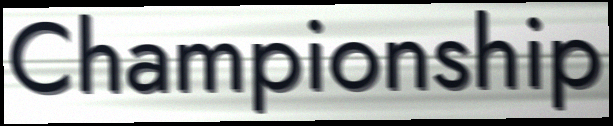
Championship